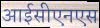
आईसीएनएस